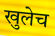
खुलेच